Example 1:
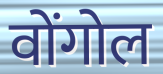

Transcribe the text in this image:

वोंगोल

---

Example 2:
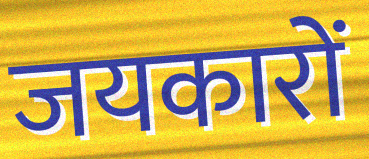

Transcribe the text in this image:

जयकारों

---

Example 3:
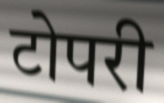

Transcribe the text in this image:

टोपरी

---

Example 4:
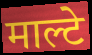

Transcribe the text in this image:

माल्टे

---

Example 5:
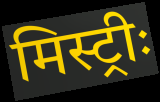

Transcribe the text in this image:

मिस्ट्रीः